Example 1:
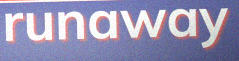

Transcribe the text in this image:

runaway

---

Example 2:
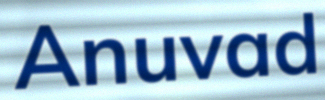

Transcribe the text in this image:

Anuvad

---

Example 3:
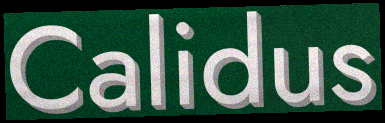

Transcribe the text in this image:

Calidus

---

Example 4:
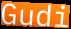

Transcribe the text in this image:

Gudi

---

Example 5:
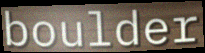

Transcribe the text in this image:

boulder